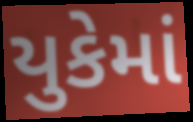
યુકેમાં